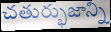
చతుర్భుజాన్ని